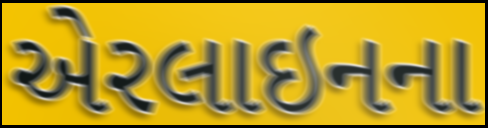
એરલાઇનના